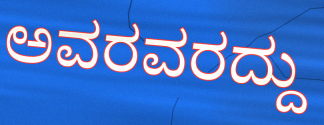
ಅವರವರದ್ದು